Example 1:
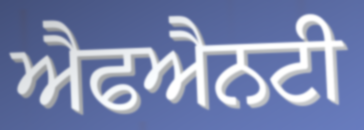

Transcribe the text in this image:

ਐਫਐਨਟੀ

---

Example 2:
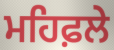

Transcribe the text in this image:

ਮਹਿਫ਼ਲੇ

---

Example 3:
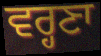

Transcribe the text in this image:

ਵਰ੍ਹਣਾ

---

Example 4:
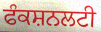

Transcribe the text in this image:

ਫੰਕਸ਼ਨਲਟੀ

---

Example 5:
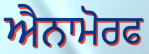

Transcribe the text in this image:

ਐਨਾਮੋਰਫ